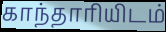
காந்தாரியிடம்